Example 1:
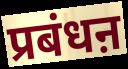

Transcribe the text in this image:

प्रबंधऩ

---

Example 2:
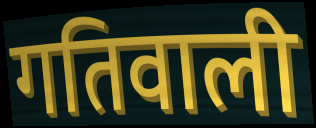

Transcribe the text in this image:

गतिवाली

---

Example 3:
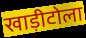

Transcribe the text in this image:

खाड़ीटोला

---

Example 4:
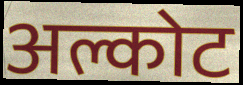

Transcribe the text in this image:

अल्कोट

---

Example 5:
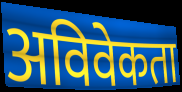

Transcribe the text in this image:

अविवेकता